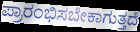
ಪ್ರಾರಂಭಿಸಬೇಕಾಗುತ್ತದೆ